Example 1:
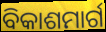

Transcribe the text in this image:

ବିକାଶମାର୍ଗ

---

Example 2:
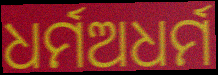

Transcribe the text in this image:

ଧର୍ମଅଧର୍ମ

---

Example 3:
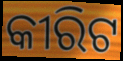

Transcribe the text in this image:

କୀରିଟ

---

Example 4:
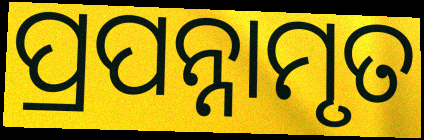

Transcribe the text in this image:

ପ୍ରପନ୍ନାମୃତ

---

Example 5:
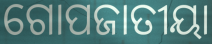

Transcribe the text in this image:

ଗୋପଜାତୀୟା